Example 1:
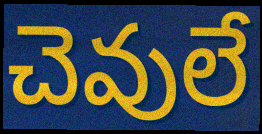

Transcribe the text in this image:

చెవులే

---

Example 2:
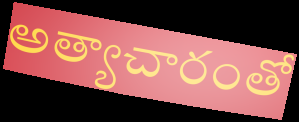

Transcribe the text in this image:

అత్యాచారంతో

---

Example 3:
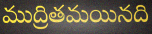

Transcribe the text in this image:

ముద్రితమయినది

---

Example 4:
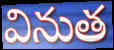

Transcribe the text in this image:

వినుత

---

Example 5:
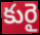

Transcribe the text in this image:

కురై